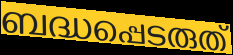
ബദ്ധപ്പെടരുത്